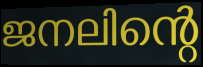
ജനലിന്റെ